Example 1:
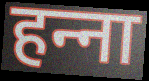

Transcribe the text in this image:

हन्ना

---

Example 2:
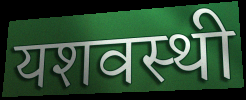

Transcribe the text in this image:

यशवस्थी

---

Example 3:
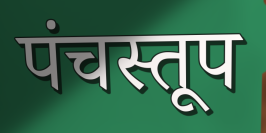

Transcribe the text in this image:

पंचस्तूप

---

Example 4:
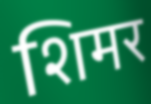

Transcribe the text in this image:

शिमर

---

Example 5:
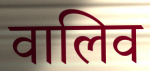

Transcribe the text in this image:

वालिव